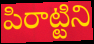
పిరాట్టిని